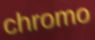
chromo